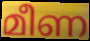
മീണ